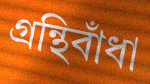
গ্রন্থিবাঁধা